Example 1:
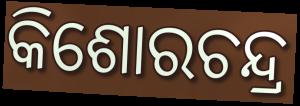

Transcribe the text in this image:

କିଶୋରଚନ୍ଦ୍ର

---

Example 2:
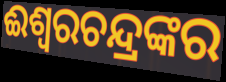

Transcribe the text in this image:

ଈଶ୍ଵରଚନ୍ଦ୍ରଙ୍କର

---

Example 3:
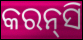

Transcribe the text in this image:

କରନ୍‌ସି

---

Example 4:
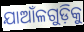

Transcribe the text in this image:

ଯାଆଁଳଗୁଡ଼ିକୁ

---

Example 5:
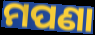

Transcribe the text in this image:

ମପଣା